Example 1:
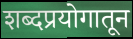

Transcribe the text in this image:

शब्दप्रयोगातून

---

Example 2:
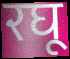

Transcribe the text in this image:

रघू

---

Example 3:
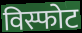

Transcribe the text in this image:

विस्फोट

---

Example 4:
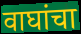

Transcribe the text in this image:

वाघांचा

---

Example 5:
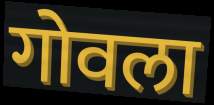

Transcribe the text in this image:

गोवला